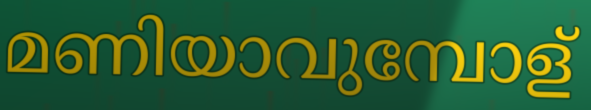
മണിയാവുമ്പോള്